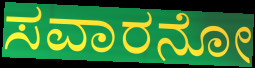
ಸವಾರನೋ